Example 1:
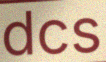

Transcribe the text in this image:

dcs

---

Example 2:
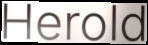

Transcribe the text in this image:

Herold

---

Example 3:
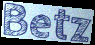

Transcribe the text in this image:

Betz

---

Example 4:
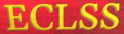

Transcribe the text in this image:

ECLSS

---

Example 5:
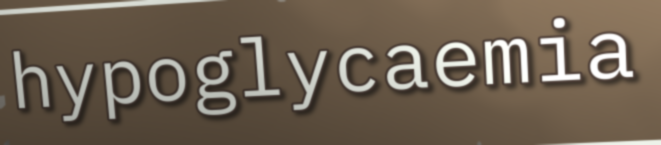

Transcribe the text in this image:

hypoglycaemia